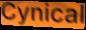
Cynical